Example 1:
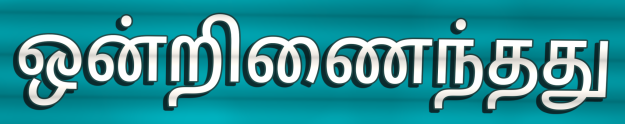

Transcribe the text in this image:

ஒன்றிணைந்தது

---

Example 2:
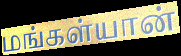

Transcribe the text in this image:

மங்கள்யான்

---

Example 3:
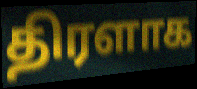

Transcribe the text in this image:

திரளாக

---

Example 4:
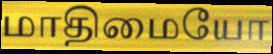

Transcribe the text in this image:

மாதிமையோ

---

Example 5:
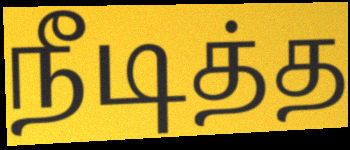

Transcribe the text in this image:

நீடித்த